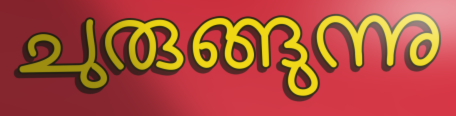
ചുരുങ്ങുന്നു